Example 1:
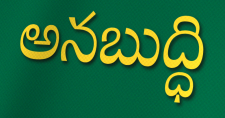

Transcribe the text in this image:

అనబుద్ధి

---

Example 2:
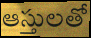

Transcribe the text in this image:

ఆస్తులతో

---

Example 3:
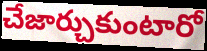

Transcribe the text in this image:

చేజార్చుకుంటారో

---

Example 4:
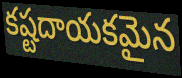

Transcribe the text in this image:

కష్టదాయకమైన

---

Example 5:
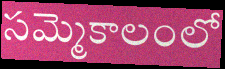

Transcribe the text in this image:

సమ్మెకాలంలో